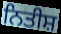
ਨਿਤੀਸ਼